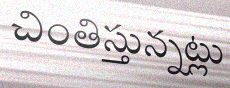
చింతిస్తున్నట్లు